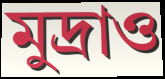
মুদ্রাও